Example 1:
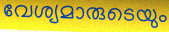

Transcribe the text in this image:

വേശ്യമാരുടെയും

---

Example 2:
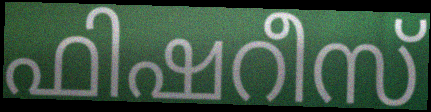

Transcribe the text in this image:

ഫിഷറീസ്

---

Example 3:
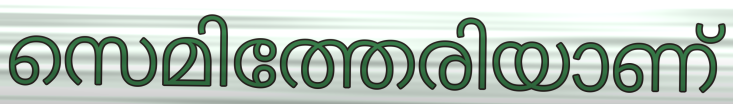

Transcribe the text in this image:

സെമിത്തേരിയാണ്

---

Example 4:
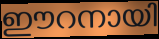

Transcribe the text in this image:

ഈറനായി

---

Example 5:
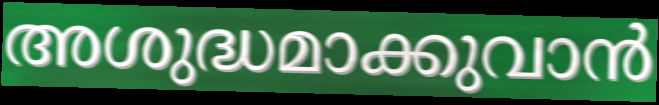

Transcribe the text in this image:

അശുദ്ധമാക്കുവാൻ